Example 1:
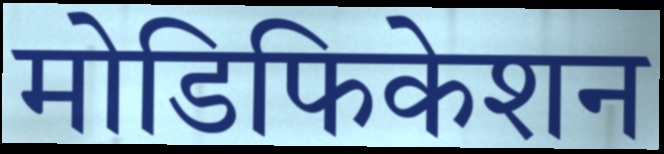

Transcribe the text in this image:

मोडिफिकेशन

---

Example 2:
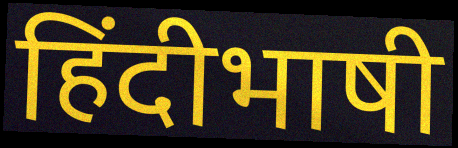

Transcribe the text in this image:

हिंदीभाषी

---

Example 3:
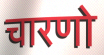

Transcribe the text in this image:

चारणो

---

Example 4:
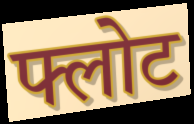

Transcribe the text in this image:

फ्लोट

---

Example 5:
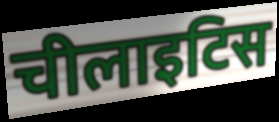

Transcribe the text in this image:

चीलाइटिस